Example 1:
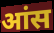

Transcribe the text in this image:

आंस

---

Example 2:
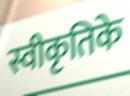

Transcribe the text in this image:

स्वीकृतिके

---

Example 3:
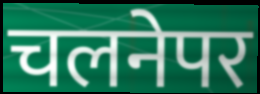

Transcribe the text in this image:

चलनेपर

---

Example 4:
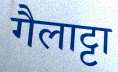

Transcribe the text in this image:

गैलाट्टा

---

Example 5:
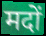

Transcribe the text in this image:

मदों